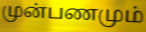
முன்பணமும்